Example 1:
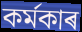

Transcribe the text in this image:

কৰ্মকাৰ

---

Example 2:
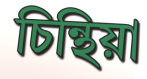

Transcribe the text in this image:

চিন্থিয়া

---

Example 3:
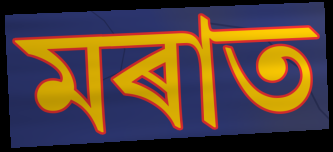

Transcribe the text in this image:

মৰাত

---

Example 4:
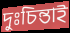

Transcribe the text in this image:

দুঃচিন্তাই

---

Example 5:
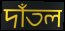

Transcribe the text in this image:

দাঁতল